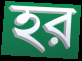
হর